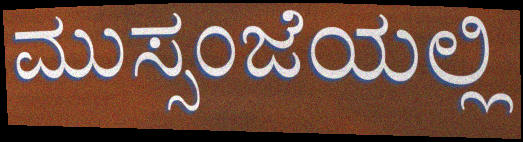
ಮುಸ್ಸಂಜೆಯಲ್ಲಿ